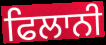
ਫਿਲਾਨੀ